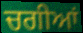
ਚਗੀਆਂ